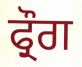
ਫ੍ਰੌਗ